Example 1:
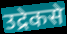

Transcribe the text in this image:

उद्रेकसे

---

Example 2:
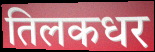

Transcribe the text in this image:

तिलकधर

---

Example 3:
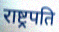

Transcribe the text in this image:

राष्ट्र्रपति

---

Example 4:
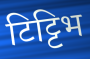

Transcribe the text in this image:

टिट्टिभ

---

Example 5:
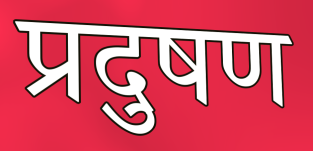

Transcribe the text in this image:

प्रदुषण